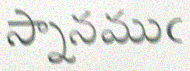
స్నానముఁ